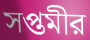
সপ্তমীর